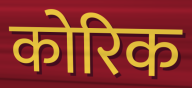
कोरिक